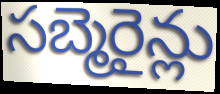
సబ్మెరైన్లు